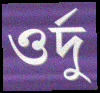
ওর্দু